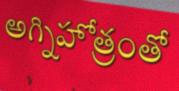
అగ్నిహోత్రంతో